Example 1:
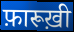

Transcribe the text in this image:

फ़ारूख़ी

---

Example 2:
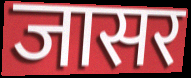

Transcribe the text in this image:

जासर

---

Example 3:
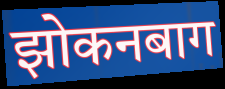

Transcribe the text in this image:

झोकनबाग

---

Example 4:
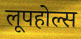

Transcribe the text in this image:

लूपहोल्स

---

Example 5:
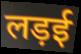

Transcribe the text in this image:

लड़ई